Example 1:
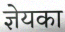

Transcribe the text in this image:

ज्ञेयका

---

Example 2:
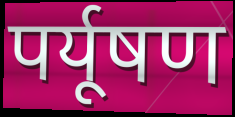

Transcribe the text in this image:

पर्यूषण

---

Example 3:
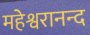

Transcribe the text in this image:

महेश्वरानन्द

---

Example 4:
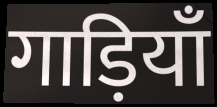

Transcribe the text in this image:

गाड़ियाँ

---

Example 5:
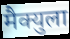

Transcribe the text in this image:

मैक्युला